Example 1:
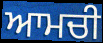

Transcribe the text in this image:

ਆਮਚੀ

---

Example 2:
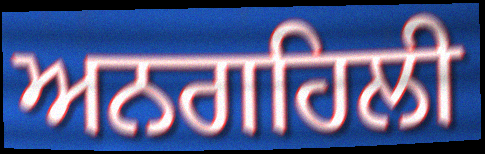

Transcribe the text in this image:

ਅਨਗਹਿਲੀ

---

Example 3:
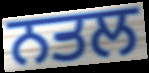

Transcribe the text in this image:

ਨਤਲ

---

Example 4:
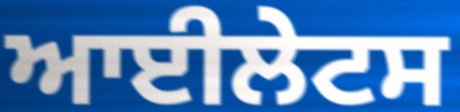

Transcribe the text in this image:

ਆਈਲੇਟਸ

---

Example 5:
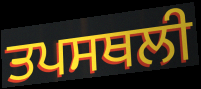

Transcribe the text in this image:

ਤਪਸਥਲੀ